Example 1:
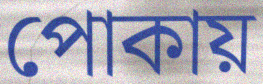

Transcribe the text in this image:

পোকায়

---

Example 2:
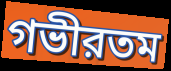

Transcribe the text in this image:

গভীরতম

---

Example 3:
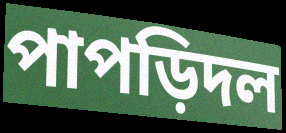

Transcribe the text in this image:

পাপড়িদল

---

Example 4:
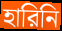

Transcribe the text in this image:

হারিনি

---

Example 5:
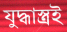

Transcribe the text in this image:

যুদ্ধাস্ত্রই